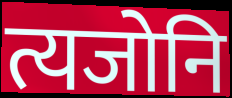
त्यजोनि